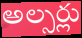
అల్సర్లు